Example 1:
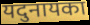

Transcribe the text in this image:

यदुनायका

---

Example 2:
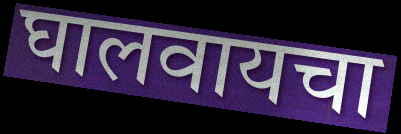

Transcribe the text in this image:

घालवायचा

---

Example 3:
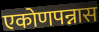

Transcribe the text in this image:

एकोणपन्नास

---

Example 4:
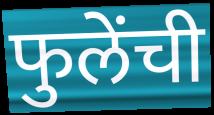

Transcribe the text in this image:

फुलेंची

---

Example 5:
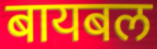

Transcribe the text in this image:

बायबल